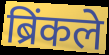
ब्रिंकले